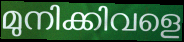
മുനിക്കിവളെ